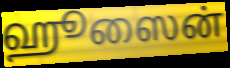
ஹூஸைன்